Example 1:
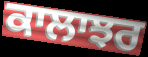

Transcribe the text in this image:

ਕਾਲਾਝਰ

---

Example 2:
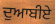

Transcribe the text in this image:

ਦੁਆਬੀਏ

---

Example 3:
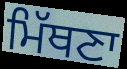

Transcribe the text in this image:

ਮਿੱਥਣਾ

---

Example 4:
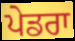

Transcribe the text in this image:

ਪੇਡਰਾ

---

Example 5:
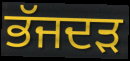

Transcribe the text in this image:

ਭੱਜਦੜ